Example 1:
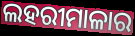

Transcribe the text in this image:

ଲହରୀମାଳାର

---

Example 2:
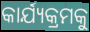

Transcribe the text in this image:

କାର୍ଯ୍ୟକ୍ରମକୁ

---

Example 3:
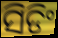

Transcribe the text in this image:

ସିଡିଂ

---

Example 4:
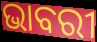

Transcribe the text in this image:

ଭାବରୀ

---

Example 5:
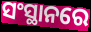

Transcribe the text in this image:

ସଂସ୍ଥାନରେ